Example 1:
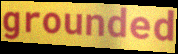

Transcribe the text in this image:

grounded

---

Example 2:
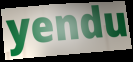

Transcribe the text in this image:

yendu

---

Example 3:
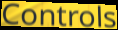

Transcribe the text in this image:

Controls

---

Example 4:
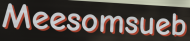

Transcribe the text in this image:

Meesomsueb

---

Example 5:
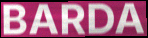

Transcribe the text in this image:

BARDA